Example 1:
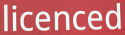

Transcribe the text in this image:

licenced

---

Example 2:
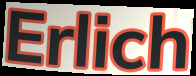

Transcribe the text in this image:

Erlich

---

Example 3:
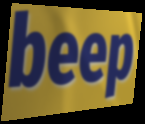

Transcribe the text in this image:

beep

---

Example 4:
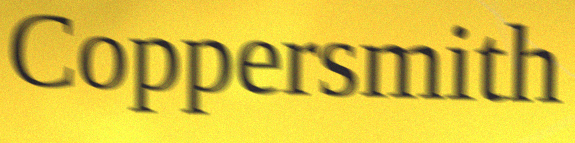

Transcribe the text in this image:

Coppersmith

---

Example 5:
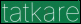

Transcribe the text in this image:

tatkare